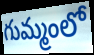
గుమ్మంలో